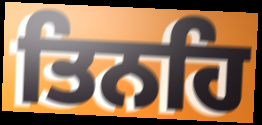
ਤਿਨਹਿ